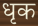
धृक